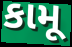
કામૂ